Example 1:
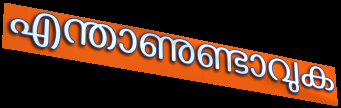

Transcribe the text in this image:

എന്താണുണ്ടാവുക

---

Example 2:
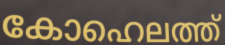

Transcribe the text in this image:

കോഹെലത്ത്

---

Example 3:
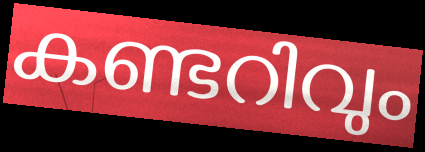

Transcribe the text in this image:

കണ്ടറിവും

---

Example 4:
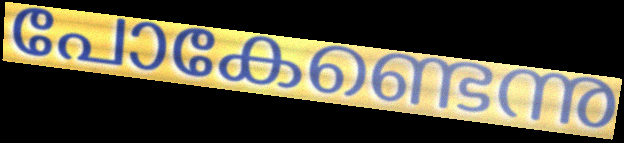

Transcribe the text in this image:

പോകേണ്ടെന്നു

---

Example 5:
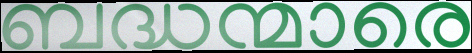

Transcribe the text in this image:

ബദ്ധന്മാരെ